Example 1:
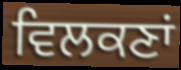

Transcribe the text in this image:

ਵਿਲਕਣਾਂ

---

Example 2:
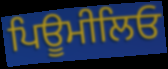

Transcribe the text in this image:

ਪਿਊਮੀਲਿਓ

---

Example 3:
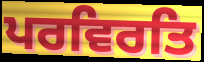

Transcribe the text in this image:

ਪਰਵਿਰਤਿ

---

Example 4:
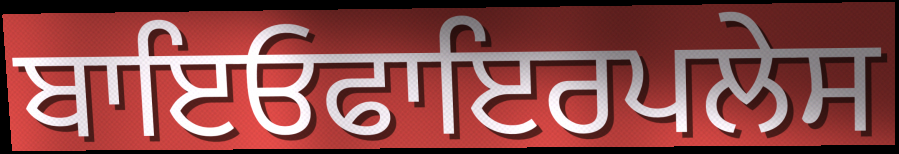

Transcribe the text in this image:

ਬਾਇਓਫਾਇਰਪਲੇਸ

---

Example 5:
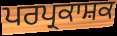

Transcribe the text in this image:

ਪਰਪ੍ਰਕਾਸ਼ਕ